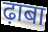
ढ़ाबा